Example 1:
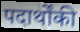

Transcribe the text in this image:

पदार्थोंकी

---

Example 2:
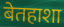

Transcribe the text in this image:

बेतहाशा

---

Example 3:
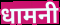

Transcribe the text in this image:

धामनी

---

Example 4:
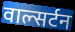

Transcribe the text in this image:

वाल्सर्टन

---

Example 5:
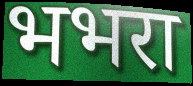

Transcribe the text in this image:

भभरा